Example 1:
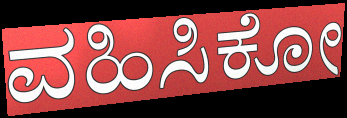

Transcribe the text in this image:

ವಹಿಸಿಕೋ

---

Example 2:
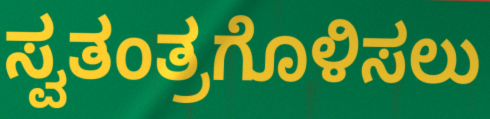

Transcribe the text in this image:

ಸ್ವತಂತ್ರಗೊಳಿಸಲು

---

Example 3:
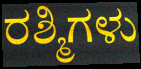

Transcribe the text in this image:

ರಶ್ಮಿಗಳು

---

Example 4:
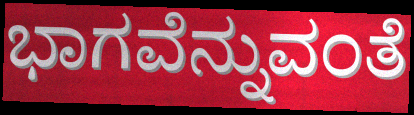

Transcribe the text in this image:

ಭಾಗವೆನ್ನುವಂತೆ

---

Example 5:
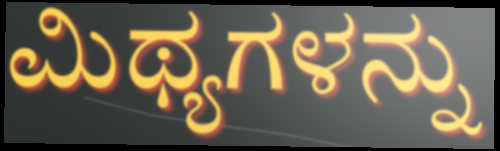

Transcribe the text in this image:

ಮಿಥ್ಯಗಳನ್ನು